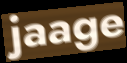
jaage